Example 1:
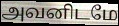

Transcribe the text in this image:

அவனிடமே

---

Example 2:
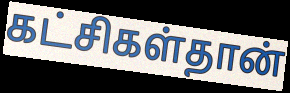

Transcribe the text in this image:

கட்சிகள்தான்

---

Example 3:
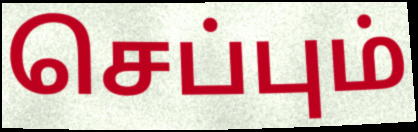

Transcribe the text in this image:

செப்பும்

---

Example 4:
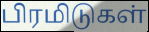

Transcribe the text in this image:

பிரமிடுகள்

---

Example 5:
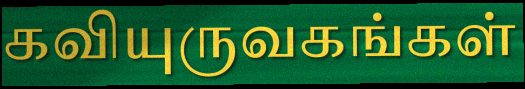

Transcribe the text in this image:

கவியுருவகங்கள்